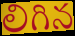
లిగిన